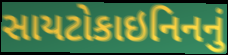
સાયટોકાઇનિનનું